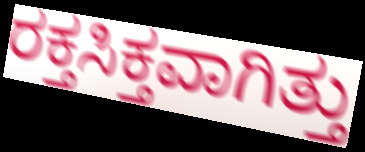
ರಕ್ತಸಿಕ್ತವಾಗಿತ್ತು